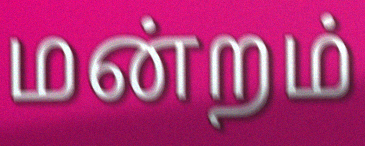
மன்றம்